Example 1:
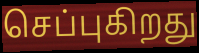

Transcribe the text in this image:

செப்புகிறது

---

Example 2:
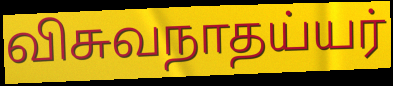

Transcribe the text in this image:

விசுவநாதய்யர்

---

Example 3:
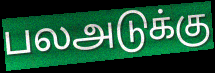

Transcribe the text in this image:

பலஅடுக்கு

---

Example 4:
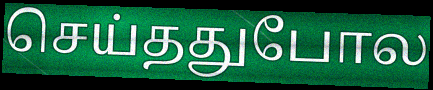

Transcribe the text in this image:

செய்ததுபோல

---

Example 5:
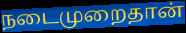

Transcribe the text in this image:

நடைமுறைதான்